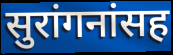
सुरांगनांसह